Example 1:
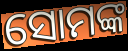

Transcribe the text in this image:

ସୋମଙ୍କ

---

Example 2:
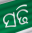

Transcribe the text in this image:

ସଢି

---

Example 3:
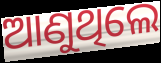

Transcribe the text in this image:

ଆଣୁଥିଲେ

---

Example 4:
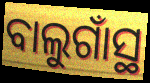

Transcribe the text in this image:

ବାଲୁଗାଁସ୍ଥ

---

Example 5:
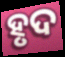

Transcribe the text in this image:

ହୃଦ